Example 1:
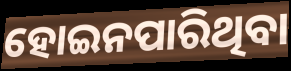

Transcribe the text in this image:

ହୋଇନପାରିଥିବା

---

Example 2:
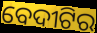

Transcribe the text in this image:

ବେଦୀଟିର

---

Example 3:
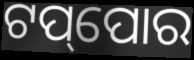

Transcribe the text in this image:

ଟପ୍‌ପୋର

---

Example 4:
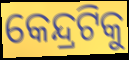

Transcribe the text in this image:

କେନ୍ଦ୍ରଟିକୁ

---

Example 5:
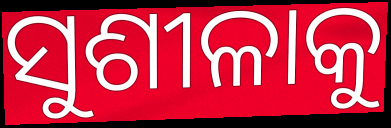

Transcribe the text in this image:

ସୁଶୀଳାକୁ